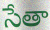
సేతా